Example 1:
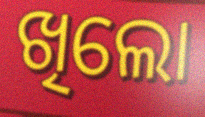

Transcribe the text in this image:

ଖିଲୋ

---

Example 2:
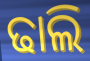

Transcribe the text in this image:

ଢାଲି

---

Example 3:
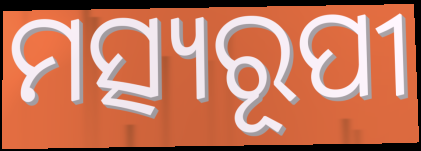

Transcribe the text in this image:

ମତ୍ସ୍ୟରୂପୀ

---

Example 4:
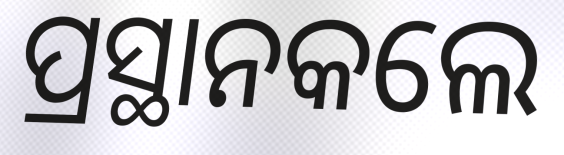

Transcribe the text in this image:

ପ୍ରସ୍ଥାନକଲେ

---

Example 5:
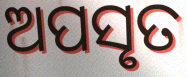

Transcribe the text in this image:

ଅପସୃତ